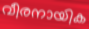
വീരനായിക